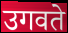
उगवते